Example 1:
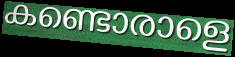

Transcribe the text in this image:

കണ്ടൊരാളെ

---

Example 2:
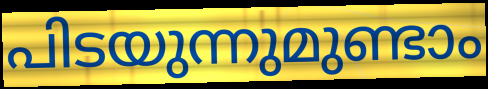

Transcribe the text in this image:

പിടയുന്നുമുണ്ടാം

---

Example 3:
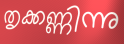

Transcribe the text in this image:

തൃക്കണ്ണിന്നു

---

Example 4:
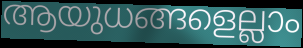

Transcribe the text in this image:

ആയുധങ്ങളെല്ലാം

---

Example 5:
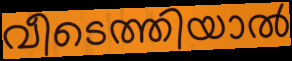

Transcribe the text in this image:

വീടെത്തിയാൽ